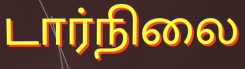
டார்நிலை